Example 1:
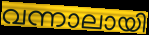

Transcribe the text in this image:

വന്നാലായി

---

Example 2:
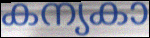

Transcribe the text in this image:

കന്യകാ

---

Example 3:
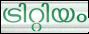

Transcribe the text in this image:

ട്രിറ്റിയം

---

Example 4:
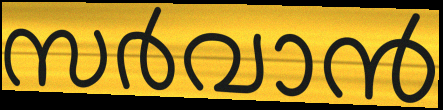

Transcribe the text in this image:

സർവാൻ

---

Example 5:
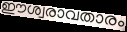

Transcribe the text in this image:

ഈശ്വരാവതാരം